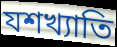
যশখ্যাতি